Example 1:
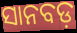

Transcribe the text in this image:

ସାନବଡ଼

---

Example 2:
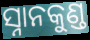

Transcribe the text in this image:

ସ୍ନାନକୁଣ୍ଡ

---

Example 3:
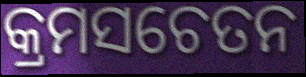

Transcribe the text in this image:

କ୍ରମସଚେତନ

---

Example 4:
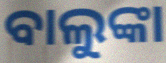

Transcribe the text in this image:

ବାଲୁଙ୍କା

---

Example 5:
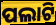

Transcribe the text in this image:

ପଲାଟି